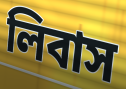
লিবাস